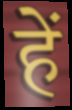
हें